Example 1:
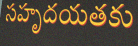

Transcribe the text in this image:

సహృదయతకు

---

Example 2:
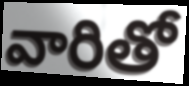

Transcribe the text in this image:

వారితో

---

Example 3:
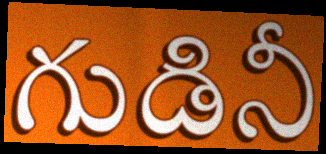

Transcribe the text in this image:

గుడినీ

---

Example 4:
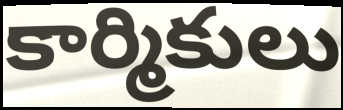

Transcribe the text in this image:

కార్మికులు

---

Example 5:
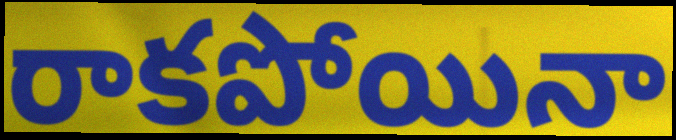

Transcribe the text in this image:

రాకపోయినా